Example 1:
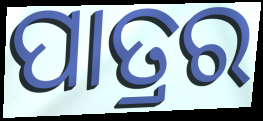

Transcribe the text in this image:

ପାତ୍ରର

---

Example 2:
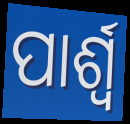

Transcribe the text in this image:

ପାର୍ଶ୍ୱ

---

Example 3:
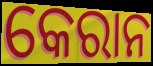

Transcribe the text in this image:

କେରାନ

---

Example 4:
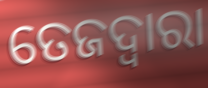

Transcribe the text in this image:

ତେଜଦ୍ୱାରା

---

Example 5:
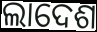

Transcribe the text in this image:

ଲାଦେଶ